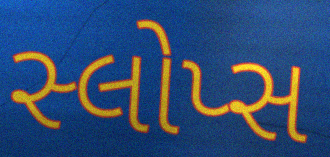
સ્લોપ્સ